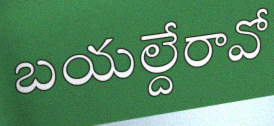
బయల్దేరావో